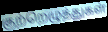
குற்றெழுத்துகள்